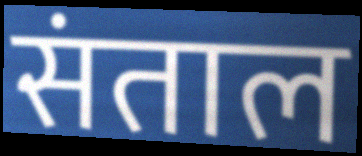
संताल